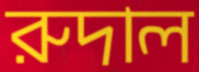
ৰুদাল